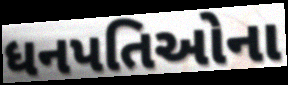
ધનપતિઓના